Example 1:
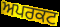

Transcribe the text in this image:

ਅਪਰਕਟ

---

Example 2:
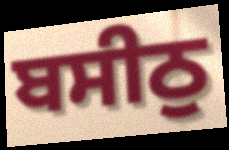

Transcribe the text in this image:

ਬਸੀਠੁ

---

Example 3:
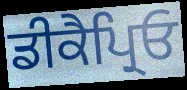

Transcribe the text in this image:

ਡੀਕੈਪ੍ਰਿਓ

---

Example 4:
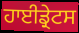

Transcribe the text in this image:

ਹਾਈਡ੍ਰੇਟਸ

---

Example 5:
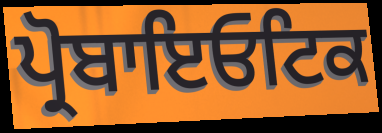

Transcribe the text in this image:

ਪ੍ਰੋਬਾਇਓਟਿਕ